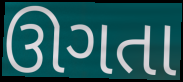
ઊગતા